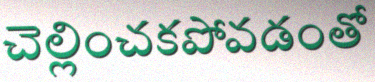
చెల్లించకపోవడంతో